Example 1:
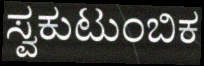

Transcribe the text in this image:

ಸ್ವಕುಟುಂಬಿಕ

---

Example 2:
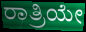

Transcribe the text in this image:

ರಾತ್ರಿಯೇ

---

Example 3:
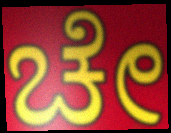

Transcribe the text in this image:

ಚೇ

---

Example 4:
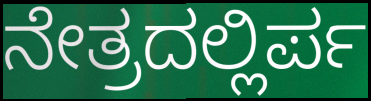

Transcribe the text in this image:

ನೇತ್ರದಲ್ಲಿರ್ಪ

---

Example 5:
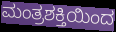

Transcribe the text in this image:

ಮಂತ್ರಶಕ್ತಿಯಿಂದ